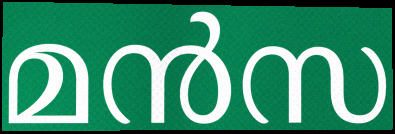
മൻസ